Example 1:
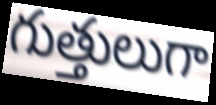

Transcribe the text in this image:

గుత్తులుగా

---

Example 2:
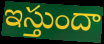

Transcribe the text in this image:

ఇస్తుందా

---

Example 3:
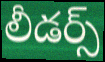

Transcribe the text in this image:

లీడర్స్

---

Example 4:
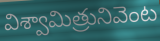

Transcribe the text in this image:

విశ్వామిత్రునివెంట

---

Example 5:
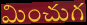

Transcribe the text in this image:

మించుగ